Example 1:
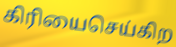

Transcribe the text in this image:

கிரியைசெய்கிற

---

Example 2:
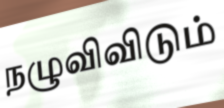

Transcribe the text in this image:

நழுவிவிடும்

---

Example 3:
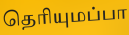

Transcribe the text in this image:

தெரியுமப்பா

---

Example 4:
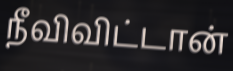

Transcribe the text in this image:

நீவிவிட்டான்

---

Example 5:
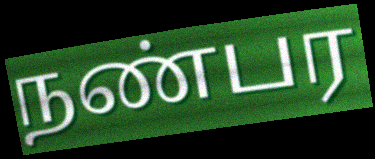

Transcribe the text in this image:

நண்பர